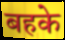
बहके